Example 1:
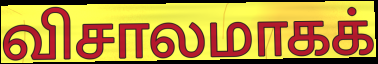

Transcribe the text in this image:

விசாலமாகக்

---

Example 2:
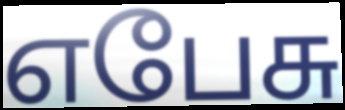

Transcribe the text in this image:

எபேசு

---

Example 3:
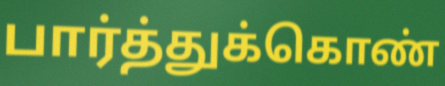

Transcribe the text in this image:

பார்த்துக்கொண்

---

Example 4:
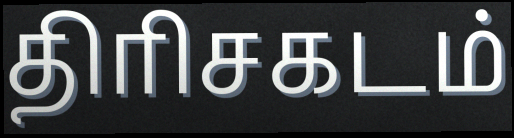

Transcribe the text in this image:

திரிசகடம்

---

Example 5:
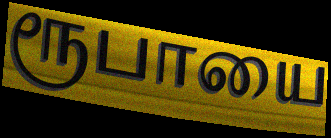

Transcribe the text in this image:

ரூபாயை